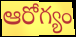
ఆరోగ్యం